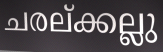
ചരല്ക്കല്ലു